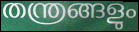
തന്ത്രങ്ങളും